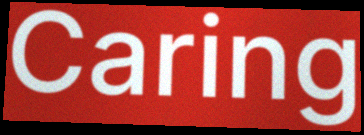
Caring